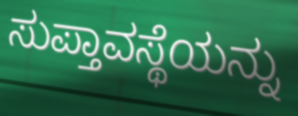
ಸುಪ್ತಾವಸ್ಥೆಯನ್ನು